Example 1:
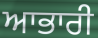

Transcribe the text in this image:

ਆਭਾਰੀ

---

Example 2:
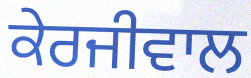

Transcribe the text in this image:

ਕੇਰਜੀਵਾਲ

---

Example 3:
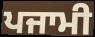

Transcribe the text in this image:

ਪਜਾਮੀ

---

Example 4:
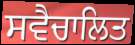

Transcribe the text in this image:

ਸਵੈਚਾਲਿਤ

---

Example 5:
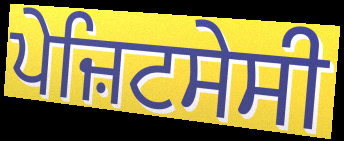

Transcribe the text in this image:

ਪੇਜ਼ਿਟਸੇਸੀ